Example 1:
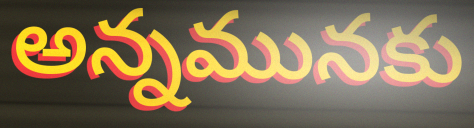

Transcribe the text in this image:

అన్నమునకు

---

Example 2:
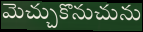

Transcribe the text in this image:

మెచ్చుకొనుచును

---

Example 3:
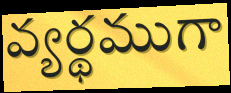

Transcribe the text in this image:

వ్యర్థముగా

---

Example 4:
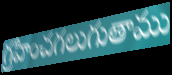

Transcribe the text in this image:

గ్రహించగలుగుతాము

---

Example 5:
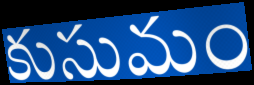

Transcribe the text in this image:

కుసుమం